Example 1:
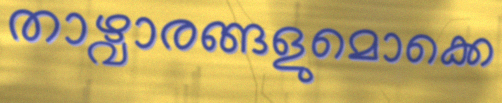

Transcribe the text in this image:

താഴ്വാരങ്ങളുമൊക്കെ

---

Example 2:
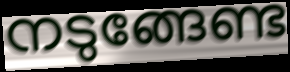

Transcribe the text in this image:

നടുങ്ങേണ്ട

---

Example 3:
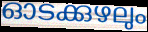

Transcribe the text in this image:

ഓടക്കുഴലും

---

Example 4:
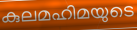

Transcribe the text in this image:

കുലമഹിമയുടെ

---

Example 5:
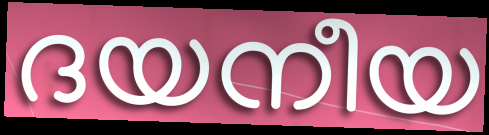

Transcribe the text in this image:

ദയനീയ